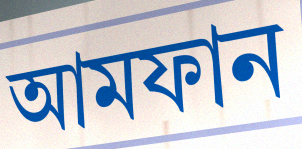
আমফান